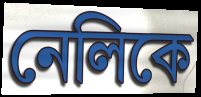
নেলিকে